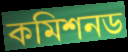
কমিশনড